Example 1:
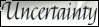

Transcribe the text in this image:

Uncertainty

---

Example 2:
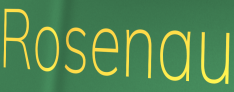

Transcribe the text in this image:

Rosenau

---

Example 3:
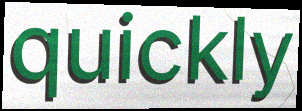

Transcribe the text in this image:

quickly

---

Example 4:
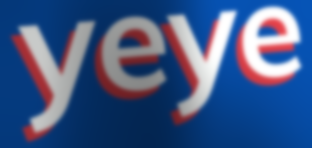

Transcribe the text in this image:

yeye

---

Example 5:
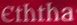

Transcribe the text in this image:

Eththa